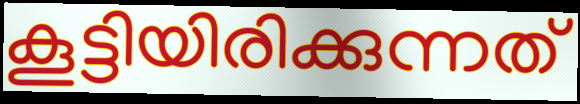
കൂട്ടിയിരിക്കുന്നത്